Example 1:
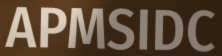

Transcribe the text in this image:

APMSIDC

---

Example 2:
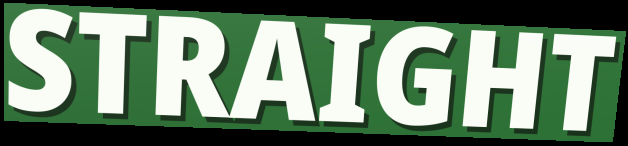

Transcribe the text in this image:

STRAIGHT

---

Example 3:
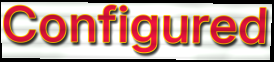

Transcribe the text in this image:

Configured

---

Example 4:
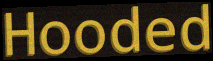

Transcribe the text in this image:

Hooded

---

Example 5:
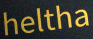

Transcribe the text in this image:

heltha